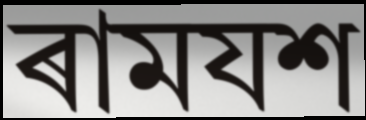
ৰামযশ